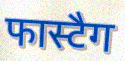
फास्टैग